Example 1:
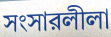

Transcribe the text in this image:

সংসারলীলা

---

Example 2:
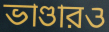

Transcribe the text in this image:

ভাণ্ডারও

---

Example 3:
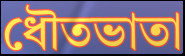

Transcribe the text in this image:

ধৌতভাতা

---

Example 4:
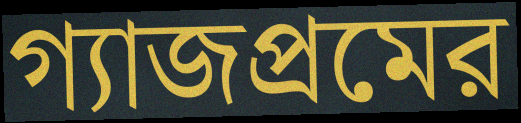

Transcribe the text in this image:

গ্যাজপ্রমের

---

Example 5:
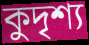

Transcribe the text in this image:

কুদৃশ্য